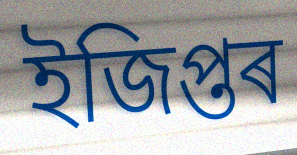
ইজিপ্তৰ